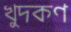
খুদকণ